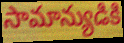
సామాన్యుడికి